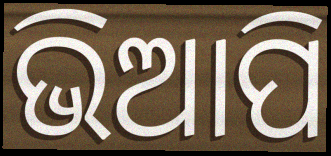
ଭିଆପି